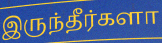
இருந்தீர்களா